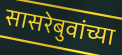
सासरेबुवांच्या